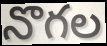
నొగల